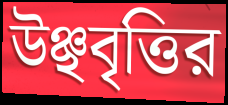
উঞ্ছবৃত্তির